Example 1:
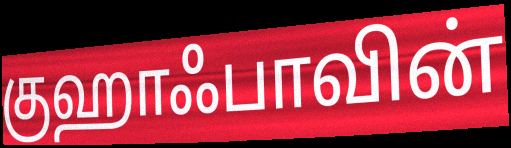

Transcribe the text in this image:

குஹாஃபாவின்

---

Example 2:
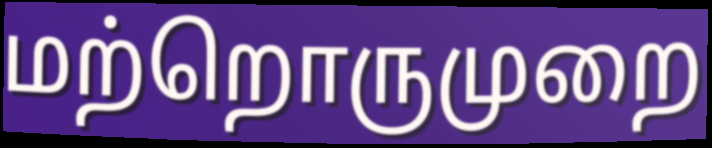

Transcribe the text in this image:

மற்றொருமுறை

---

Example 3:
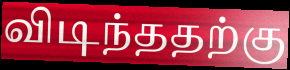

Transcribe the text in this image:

விடிந்ததற்கு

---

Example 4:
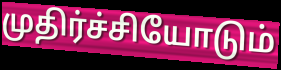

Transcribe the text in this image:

முதிர்ச்சியோடும்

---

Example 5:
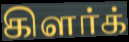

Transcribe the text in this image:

கிளர்க்